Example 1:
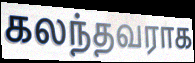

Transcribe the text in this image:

கலந்தவராக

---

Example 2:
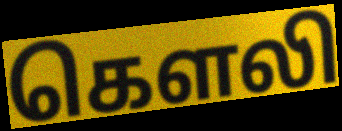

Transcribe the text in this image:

கௌலி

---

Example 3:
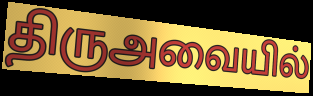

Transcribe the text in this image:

திருஅவையில்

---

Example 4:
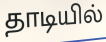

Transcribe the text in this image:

தாடியில்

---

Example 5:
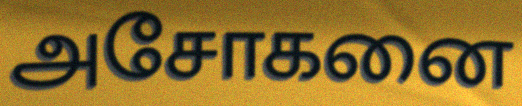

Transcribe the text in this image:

அசோகனை